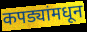
कपड्यांमधून